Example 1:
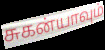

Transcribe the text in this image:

சுகன்யாவும்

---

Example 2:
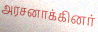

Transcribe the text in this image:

அரசனாக்கினர்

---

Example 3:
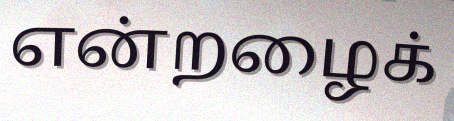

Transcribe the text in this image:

என்றழைக்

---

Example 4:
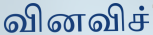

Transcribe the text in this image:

வினவிச்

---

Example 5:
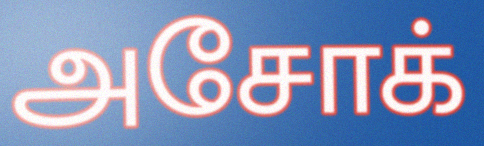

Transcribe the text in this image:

அசோக்